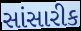
સાંસારીક